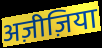
अज़ीज़िया